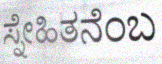
ಸ್ನೇಹಿತನೆಂಬ